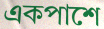
একপাশে